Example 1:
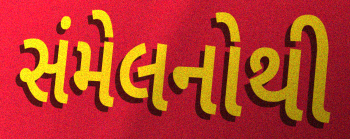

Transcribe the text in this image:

સંમેલનોથી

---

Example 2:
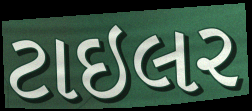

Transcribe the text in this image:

ટાઇલર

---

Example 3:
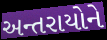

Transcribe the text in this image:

અન્તરાયોને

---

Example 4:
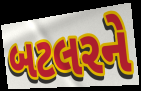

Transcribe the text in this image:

બટલરને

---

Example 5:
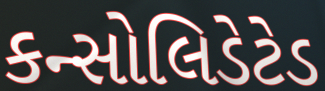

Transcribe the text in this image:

કન્સોલિડેટેડ